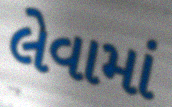
લેવામાં